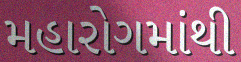
મહારોગમાંથી